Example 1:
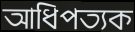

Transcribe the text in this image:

আধিপত্যক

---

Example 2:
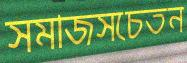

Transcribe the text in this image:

সমাজসচেতন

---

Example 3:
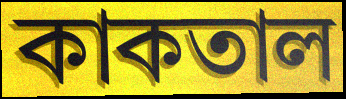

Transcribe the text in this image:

কাকতাল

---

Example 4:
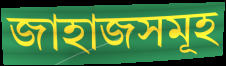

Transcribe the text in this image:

জাহাজসমূহ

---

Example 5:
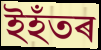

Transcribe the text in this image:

ইহঁতৰ